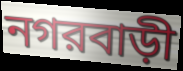
নগরবাড়ী